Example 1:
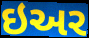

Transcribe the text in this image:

ઇઅર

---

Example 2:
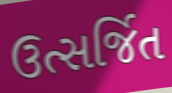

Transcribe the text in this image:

ઉત્સર્જિત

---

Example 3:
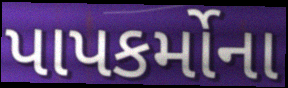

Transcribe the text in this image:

પાપકર્મોના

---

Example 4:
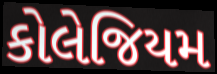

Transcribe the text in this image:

કોલેજિયમ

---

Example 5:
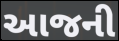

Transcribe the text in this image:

આજની